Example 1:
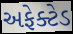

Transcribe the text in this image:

અફેક્ટેડ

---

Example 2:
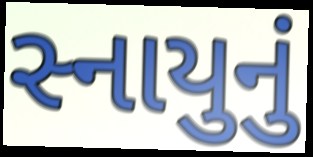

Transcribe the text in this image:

સ્નાયુનું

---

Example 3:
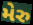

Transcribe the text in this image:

મેરુ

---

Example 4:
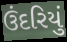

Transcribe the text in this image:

ઉંદરિયું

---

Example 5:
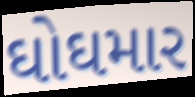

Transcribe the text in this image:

ઘોઘમાર